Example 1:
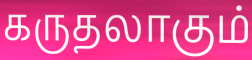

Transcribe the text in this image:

கருதலாகும்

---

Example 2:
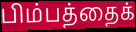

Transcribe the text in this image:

பிம்பத்தைக்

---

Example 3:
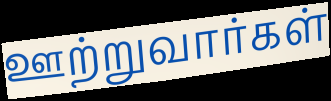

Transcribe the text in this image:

ஊற்றுவார்கள்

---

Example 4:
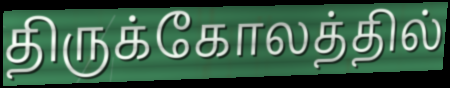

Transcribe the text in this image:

திருக்கோலத்தில்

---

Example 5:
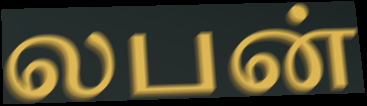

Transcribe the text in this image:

லபன்